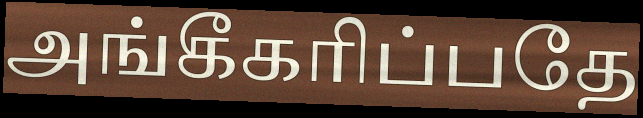
அங்கீகரிப்பதே